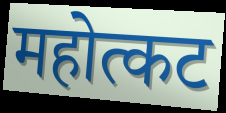
महोत्कट